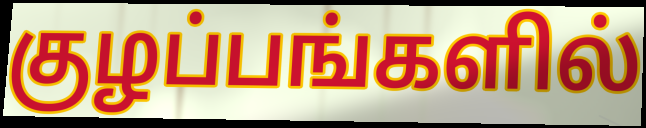
குழப்பங்களில்